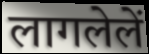
लागलेलें